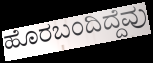
ಹೊರಬಂದಿದ್ದೆವು